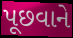
પૂછવાને